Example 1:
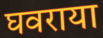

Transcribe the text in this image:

घवराया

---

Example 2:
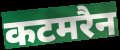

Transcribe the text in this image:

कटमरैन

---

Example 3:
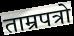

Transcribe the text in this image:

ताम्रपत्रो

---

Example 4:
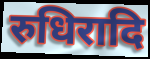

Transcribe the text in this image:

रुधिरादि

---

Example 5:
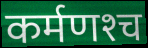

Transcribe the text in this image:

कर्मणश्च